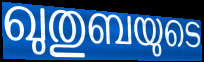
ഖുതുബയുടെ